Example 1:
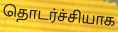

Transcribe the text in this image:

தொடர்ச்சியாக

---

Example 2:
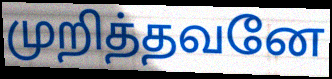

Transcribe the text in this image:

முறித்தவனே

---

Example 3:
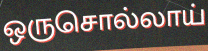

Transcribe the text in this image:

ஒருசொல்லாய்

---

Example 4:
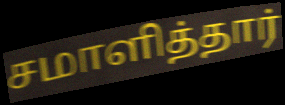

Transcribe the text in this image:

சமாளித்தார்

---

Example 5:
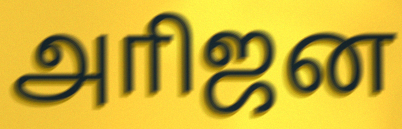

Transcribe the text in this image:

அரிஜன